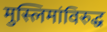
मुस्लिमांविरुद्ध